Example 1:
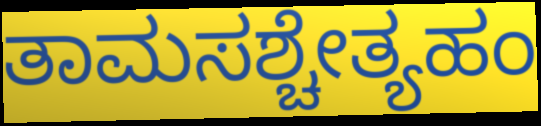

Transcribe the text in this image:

ತಾಮಸಶ್ಚೇತ್ಯಹಂ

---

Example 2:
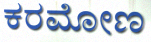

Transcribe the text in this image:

ಕರಮೋಣ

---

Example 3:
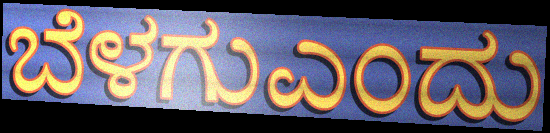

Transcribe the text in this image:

ಬೆಳಗುಎಂದು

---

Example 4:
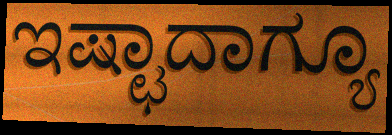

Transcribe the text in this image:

ಇಷ್ಟಾದಾಗ್ಯೂ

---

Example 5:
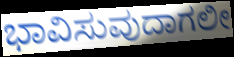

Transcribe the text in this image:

ಭಾವಿಸುವುದಾಗಲೀ